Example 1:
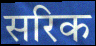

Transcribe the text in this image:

सरिक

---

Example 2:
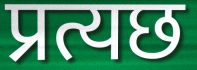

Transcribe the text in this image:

प्रत्यछ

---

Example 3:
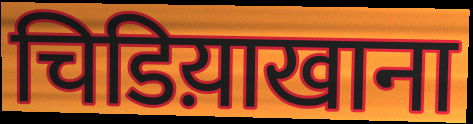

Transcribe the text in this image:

चिडिय़ाखाना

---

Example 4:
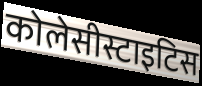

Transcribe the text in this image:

कोलेसीस्टाइटिस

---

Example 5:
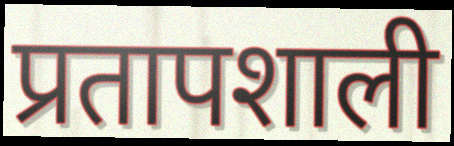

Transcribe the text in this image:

प्रतापशाली